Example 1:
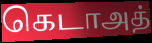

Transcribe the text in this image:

கெடாஅத்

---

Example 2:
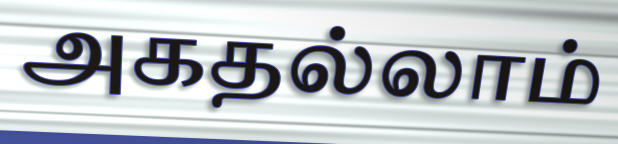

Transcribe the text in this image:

அகதல்லாம்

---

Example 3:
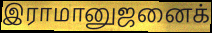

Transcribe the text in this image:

இராமானுஜனைக்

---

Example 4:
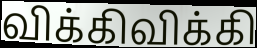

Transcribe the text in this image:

விக்கிவிக்கி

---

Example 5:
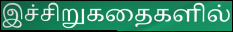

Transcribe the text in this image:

இச்சிறுகதைகளில்